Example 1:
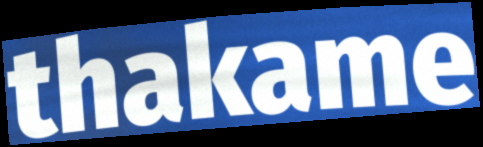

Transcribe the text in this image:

thakame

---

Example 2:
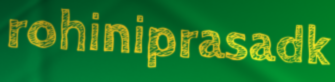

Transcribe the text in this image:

rohiniprasadk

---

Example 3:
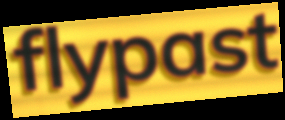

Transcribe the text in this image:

flypast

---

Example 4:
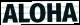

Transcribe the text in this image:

ALOHA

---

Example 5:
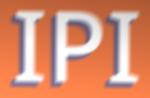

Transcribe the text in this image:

IPI